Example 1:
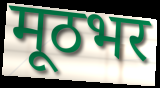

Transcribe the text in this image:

मूठभर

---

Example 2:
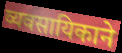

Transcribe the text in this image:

व्यवसायिकाने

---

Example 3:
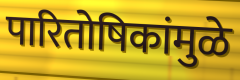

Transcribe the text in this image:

पारितोषिकांमुळे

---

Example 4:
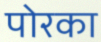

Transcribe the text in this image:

पोरका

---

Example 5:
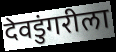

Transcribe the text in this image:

देवडुंगरीला